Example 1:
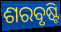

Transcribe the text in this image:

ଶରବୃଷ୍ଟି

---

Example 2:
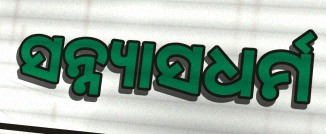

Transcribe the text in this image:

ସନ୍ନ୍ୟାସଧର୍ମ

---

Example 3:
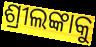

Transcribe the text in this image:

ଶ୍ରୀଲଙ୍କାକୁ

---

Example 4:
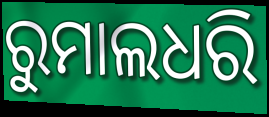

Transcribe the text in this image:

ରୁମାଲଧରି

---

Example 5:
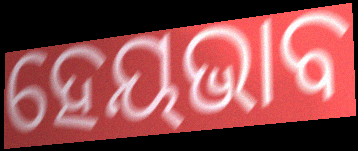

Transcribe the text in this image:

ହେୟଭାବ